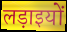
लड़ाइयों